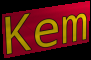
Kem